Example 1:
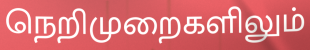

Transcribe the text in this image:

நெறிமுறைகளிலும்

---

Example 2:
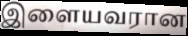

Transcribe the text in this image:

இளையவரான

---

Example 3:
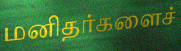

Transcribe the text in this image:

மனிதர்களைச்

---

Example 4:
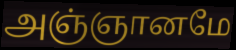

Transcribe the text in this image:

அஞ்ஞானமே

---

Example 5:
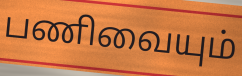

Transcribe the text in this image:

பணிவையும்